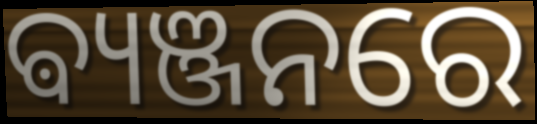
ଵ୍ୟଞ୍ଜନରେ